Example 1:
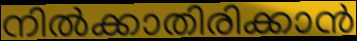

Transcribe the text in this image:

നിൽക്കാതിരിക്കാൻ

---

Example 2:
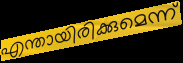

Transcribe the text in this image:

എന്തായിരിക്കുമെന്ന്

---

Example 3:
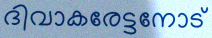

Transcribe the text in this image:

ദിവാകരേട്ടനോട്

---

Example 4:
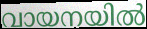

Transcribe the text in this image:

വായനയിൽ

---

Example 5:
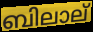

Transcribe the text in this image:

ബിലാല്